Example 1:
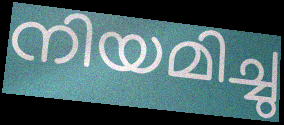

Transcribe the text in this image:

നിയമിച്ചു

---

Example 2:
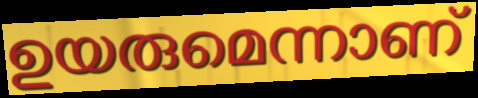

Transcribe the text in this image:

ഉയരുമെന്നാണ്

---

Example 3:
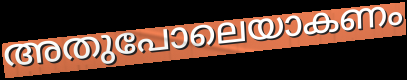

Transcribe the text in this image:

അതുപോലെയാകണം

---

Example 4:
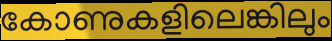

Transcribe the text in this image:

കോണുകളിലെങ്കിലും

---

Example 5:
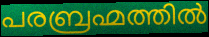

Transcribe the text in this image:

പരബ്രഹ്മത്തിൽ